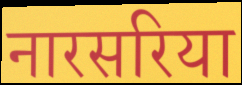
नारसरिया